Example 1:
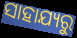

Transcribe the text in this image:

ସାହାଯ୍ୟରୁ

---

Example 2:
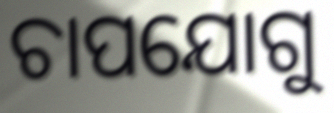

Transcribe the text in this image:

ଚାପଯୋଗୁ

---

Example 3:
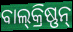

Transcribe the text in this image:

ବାଲ୍‍କ୍ରିଷ୍ଣନ୍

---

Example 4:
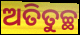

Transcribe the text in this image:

ଅତିତୁଚ୍ଛ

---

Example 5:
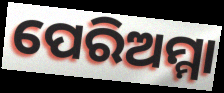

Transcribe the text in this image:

ପେରିଅମ୍ମା